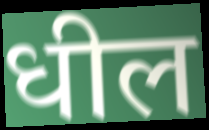
धील